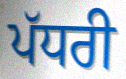
ਪੱਧਰੀ